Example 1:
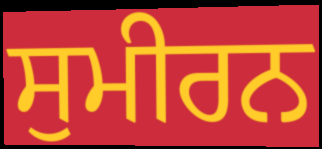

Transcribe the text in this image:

ਸੁਮੀਰਨ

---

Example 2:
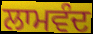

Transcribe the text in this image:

ਲਾਮਵੰਦ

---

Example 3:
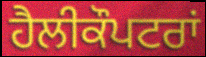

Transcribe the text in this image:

ਹੈਲੀਕੌਪਟਰਾਂ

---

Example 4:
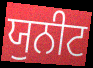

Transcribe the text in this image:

ਯੁਨੀਟ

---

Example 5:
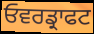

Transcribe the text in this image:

ਓਵਰਡ੍ਰਾਫਟ